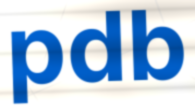
pdb